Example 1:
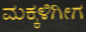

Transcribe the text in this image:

ಮಕ್ಕಳಿಗೀಗ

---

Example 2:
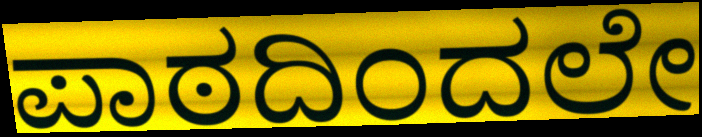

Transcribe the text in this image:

ಪಾಠದಿಂದಲೇ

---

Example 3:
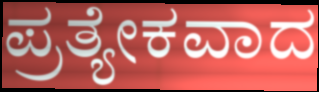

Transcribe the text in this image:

ಪ್ರತ್ಯೇಕವಾದ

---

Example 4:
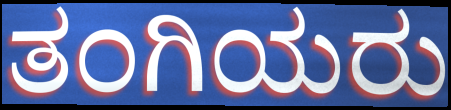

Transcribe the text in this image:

ತಂಗಿಯರು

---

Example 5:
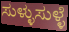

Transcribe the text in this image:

ಸುಳ್ಳುಸುಳ್ಳೆ